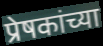
प्रेषकांच्या